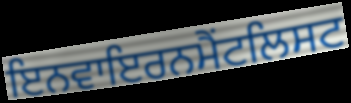
ਇਨਵਾਇਰਨਮੈਂਟਲਿਸਟ